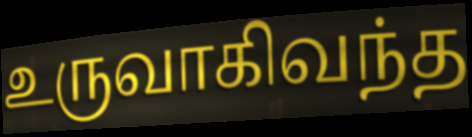
உருவாகிவந்த